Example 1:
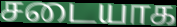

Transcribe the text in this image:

சடையாக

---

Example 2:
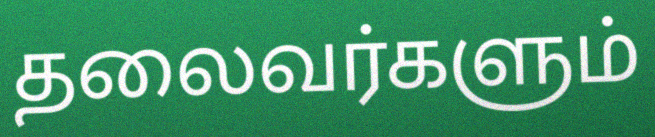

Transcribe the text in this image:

தலைவர்களும்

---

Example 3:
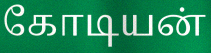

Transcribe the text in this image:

கோடியன்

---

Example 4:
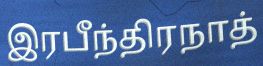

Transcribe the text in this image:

இரபீந்திரநாத்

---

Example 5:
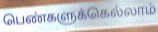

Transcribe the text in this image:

பெண்களுக்கெல்லாம்